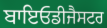
ਬਾਇਓਡੀਜੈਸਟਰ